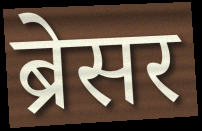
ब्रेसर